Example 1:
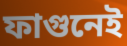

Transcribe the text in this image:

ফাগুনেই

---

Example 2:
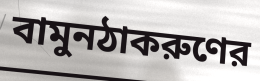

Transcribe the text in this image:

বামুনঠাকরুণের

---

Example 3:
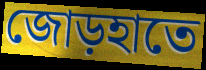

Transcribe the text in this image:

জোড়হাতে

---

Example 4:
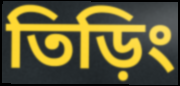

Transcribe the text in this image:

তিড়িং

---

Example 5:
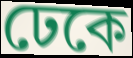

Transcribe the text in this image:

ঢেকে